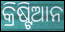
କ୍ରିଷ୍ଟିଆନ